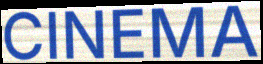
CINEMA